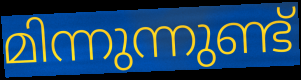
മിന്നുന്നുണ്ട്